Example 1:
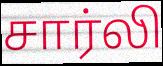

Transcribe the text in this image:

சார்லி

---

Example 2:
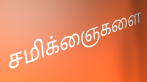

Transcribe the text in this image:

சமிக்ஞைகளை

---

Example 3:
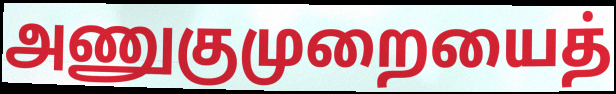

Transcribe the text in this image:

அணுகுமுறையைத்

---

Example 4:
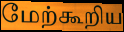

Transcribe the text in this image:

மேற்கூறிய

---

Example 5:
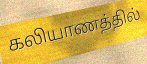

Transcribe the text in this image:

கலியாணத்தில்